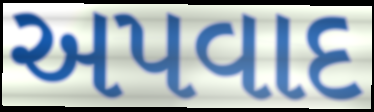
અપવાદ